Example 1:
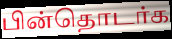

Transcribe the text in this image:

பின்தொடர்க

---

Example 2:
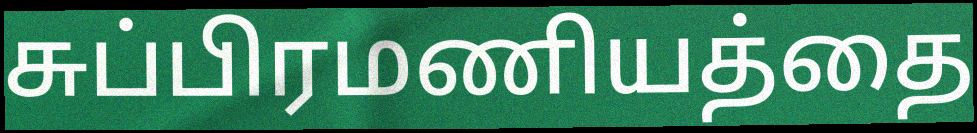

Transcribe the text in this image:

சுப்பிரமணியத்தை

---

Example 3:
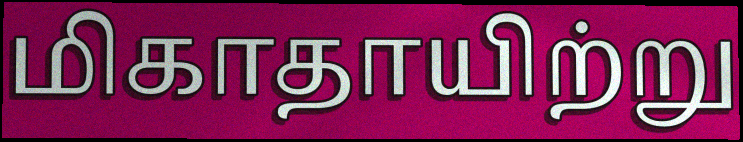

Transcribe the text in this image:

மிகாதாயிற்று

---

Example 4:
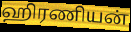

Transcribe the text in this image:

ஹிரணியன்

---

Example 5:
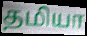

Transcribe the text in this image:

தமியா